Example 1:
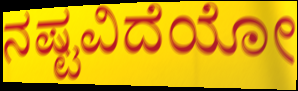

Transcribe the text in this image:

ನಷ್ಟವಿದೆಯೋ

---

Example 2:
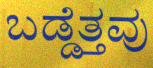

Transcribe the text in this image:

ಬಡ್ಡೆತ್ತವು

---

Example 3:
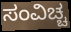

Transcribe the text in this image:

ಸಂವಿಚ್ಚ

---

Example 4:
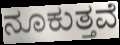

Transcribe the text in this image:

ನೂಕುತ್ತವೆ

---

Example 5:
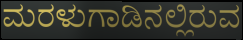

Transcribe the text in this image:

ಮರಳುಗಾಡಿನಲ್ಲಿರುವ